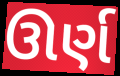
ઊર્ણ